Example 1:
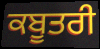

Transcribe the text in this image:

ਕਬੂਤਰੀ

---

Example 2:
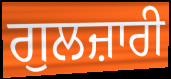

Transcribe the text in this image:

ਗੁਲਜ਼ਾਰੀ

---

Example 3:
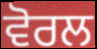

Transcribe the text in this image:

ਵੋਰਲ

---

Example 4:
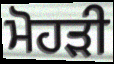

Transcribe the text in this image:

ਮੋਹੜੀ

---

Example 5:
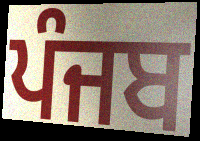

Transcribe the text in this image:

ਪੰਜਬ